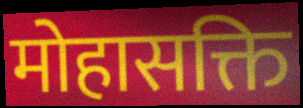
मोहासक्ति